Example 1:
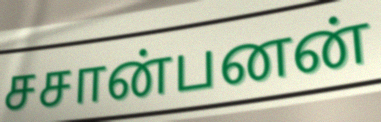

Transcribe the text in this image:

சசான்பனன்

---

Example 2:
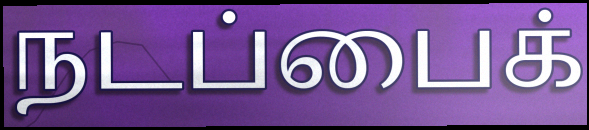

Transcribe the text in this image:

நடப்பைக்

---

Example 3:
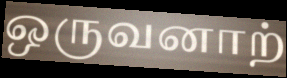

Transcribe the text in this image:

ஒருவனாற்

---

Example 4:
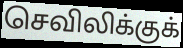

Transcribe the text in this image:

செவிலிக்குக்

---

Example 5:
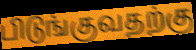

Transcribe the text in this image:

பிடுங்குவதற்கு